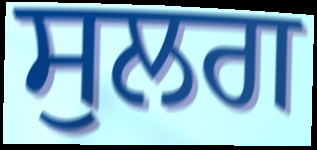
ਸੁਲਗ